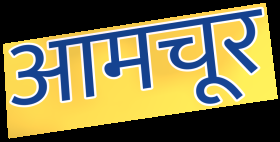
आमचूर